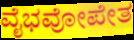
ವೈಭವೋಪೇತ